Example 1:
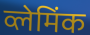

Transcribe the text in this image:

व्लेमिंक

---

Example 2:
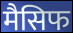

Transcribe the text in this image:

मैसिफ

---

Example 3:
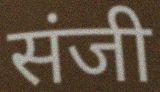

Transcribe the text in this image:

संजी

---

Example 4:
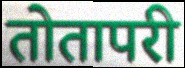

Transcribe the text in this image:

तोतापरी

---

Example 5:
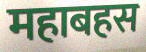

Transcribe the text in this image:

महाबहस